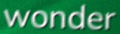
wonder